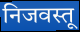
निजवस्तू